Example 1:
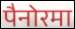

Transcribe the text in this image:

पैनोरमा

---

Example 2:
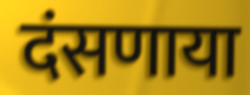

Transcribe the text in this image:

दंसणाया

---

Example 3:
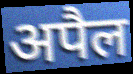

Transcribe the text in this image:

अपैल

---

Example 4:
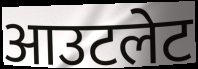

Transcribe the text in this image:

आउटलेट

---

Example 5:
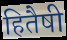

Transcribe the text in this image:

हितैषी